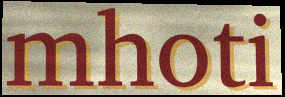
mhoti